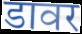
डावर